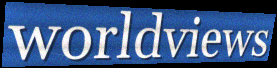
worldviews